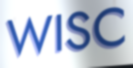
WISC